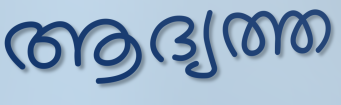
ആദ്യത്ത